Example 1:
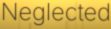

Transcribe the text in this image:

Neglected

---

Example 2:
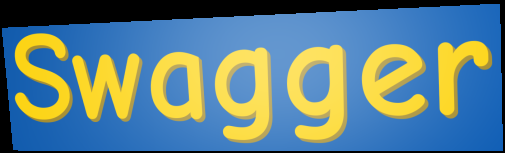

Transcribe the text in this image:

Swagger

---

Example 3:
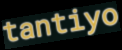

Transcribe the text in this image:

tantiyo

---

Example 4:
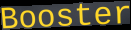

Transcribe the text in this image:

Booster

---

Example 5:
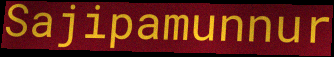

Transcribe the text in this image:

Sajipamunnur